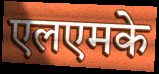
एलएमके